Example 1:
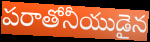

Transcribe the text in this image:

పరాతోనీయుడైన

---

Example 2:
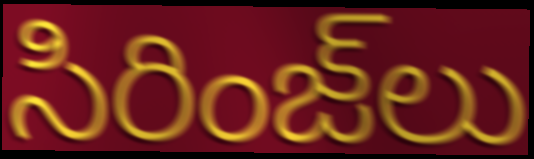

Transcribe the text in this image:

సిరింజ్‌లు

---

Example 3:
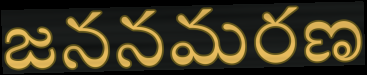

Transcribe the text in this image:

జననమరణ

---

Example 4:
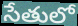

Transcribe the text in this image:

సేతులో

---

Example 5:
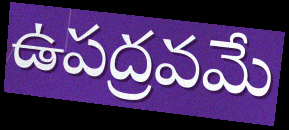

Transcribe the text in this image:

ఉపద్రవమే